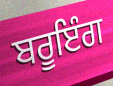
ਬਰੂਇੰਗ